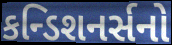
કન્ડિશનર્સનો